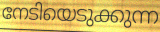
നേടിയെടുക്കുന്ന